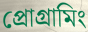
প্রোগ্রামিং